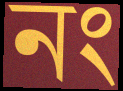
নং